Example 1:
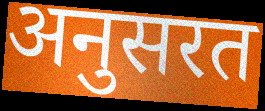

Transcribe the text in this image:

अनुसरत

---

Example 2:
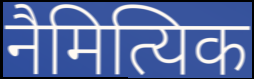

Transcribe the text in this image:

नैमित्यिक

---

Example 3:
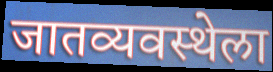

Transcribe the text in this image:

जातव्यवस्थेला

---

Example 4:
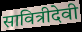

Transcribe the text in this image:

सावित्रीदेवी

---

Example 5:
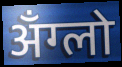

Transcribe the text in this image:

अँग्लो